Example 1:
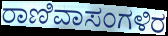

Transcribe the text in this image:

ರಾಣಿವಾಸಂಗಳಿರ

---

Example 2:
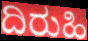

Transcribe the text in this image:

ದಿರುಹಿ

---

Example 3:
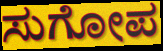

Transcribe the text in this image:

ಸುಗೋಪ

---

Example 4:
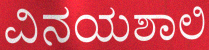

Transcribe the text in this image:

ವಿನಯಶಾಲಿ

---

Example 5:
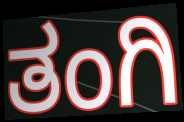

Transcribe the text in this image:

ತಂಗಿ